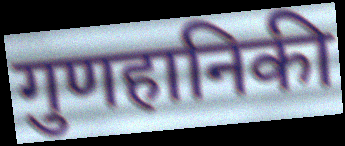
गुणहानिकी